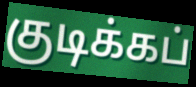
குடிக்கப்